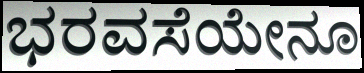
ಭರವಸೆಯೇನೂ